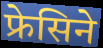
फ्रेसिने